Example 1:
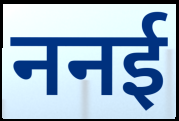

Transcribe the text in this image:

ननई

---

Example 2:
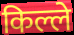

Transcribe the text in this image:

किल्ले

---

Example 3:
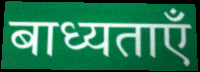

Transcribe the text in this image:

बाध्यताएँ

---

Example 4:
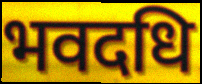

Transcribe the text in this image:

भवदधि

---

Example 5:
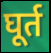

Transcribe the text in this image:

घूर्त